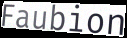
Faubion